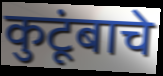
कुटूंबाचे